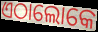
ଏଠାଲୋକେ